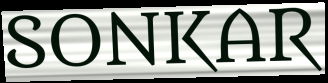
SONKAR